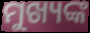
ମୁଖ୍ୟଙ୍କ